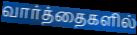
வார்த்தைகளில்